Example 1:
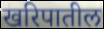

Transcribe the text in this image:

खरिपातील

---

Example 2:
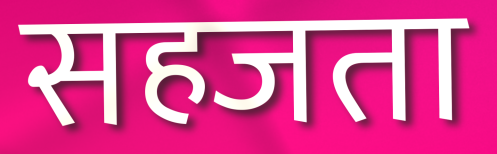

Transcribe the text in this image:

सहजता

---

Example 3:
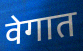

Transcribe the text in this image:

वेगात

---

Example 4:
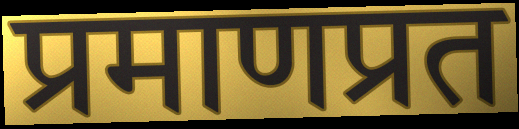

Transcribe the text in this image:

प्रमाणप्रत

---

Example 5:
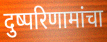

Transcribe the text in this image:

दुष्परिणामांचा